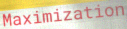
Maximization